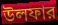
উলফার